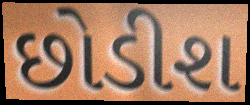
છોડીશ